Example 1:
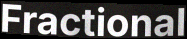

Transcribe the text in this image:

Fractional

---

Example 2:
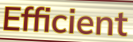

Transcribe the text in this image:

Efficient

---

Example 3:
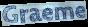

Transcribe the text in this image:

Graeme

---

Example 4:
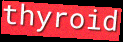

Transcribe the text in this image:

thyroid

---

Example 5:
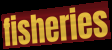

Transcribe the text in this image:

fisheries